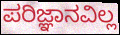
ಪರಿಜ್ಞಾನವಿಲ್ಲ